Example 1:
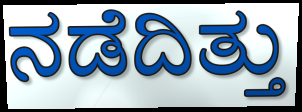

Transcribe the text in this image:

ನಡೆದಿತ್ತು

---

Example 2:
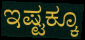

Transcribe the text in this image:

ಇಷ್ಟಕ್ಕೂ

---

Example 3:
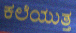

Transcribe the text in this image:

ಕಲೆಯುತ್ತ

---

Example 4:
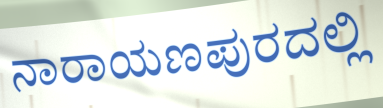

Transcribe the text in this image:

ನಾರಾಯಣಪುರದಲ್ಲಿ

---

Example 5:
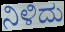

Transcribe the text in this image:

ನಿಳಿದು